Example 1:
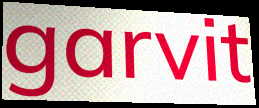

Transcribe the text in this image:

garvit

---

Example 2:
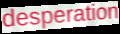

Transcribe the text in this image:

desperation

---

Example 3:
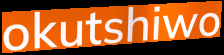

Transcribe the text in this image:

okutshiwo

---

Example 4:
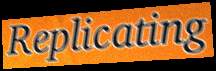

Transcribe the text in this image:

Replicating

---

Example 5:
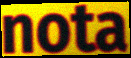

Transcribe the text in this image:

nota